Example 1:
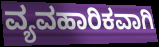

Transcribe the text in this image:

ವ್ಯವಹಾರಿಕವಾಗಿ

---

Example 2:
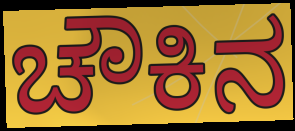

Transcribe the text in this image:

ಚೌಕಿನ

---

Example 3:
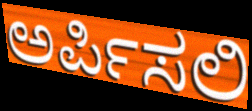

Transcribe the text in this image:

ಅರ್ಪಿಸಲಿ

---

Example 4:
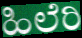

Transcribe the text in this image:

ಹಿಲೆರಿ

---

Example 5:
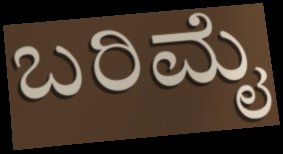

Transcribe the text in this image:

ಬರಿಮೈ